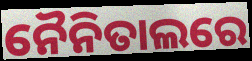
ନୈନିତାଲରେ